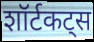
शॉर्टकट्स